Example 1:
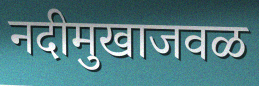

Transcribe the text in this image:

नदीमुखाजवळ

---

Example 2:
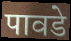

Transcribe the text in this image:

पावडे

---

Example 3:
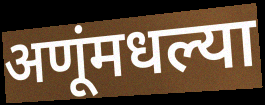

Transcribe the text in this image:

अणूंमधल्या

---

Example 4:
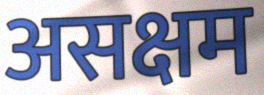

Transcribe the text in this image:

असक्षम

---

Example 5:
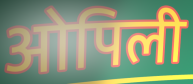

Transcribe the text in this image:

ओपिली